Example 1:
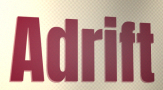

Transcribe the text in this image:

Adrift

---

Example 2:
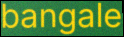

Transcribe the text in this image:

bangale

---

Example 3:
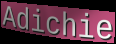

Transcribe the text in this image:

Adichie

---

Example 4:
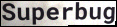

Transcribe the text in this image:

Superbug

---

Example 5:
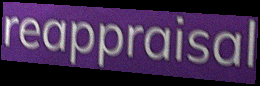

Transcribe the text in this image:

reappraisal